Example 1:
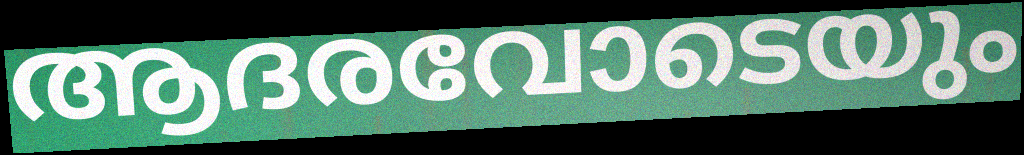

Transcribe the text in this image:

ആദരവോടെയും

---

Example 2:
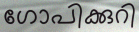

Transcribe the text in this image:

ഗോപിക്കുറി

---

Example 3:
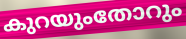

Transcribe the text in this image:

കുറയുംതോറും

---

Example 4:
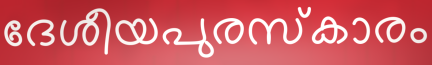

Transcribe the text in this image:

ദേശീയപുരസ്കാരം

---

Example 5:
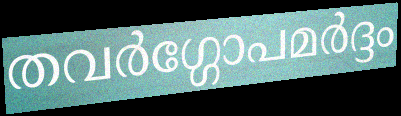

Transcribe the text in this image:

തവർഗ്ഗോപമർദ്ദം